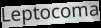
Leptocoma